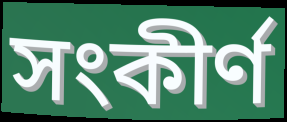
সংকীৰ্ণ